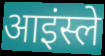
आइंस्ले